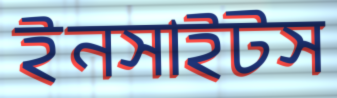
ইনসাইটস